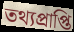
তথ্যপ্রাপ্তি